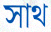
সাথ